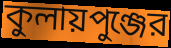
কুলায়পুঞ্জের